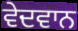
ਵੇਦਵਾਨ